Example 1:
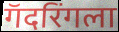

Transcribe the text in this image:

गॅदरिंगला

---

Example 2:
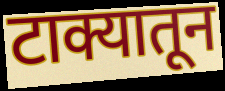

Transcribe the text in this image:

टाक्यातून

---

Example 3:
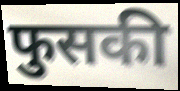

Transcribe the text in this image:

फुसकी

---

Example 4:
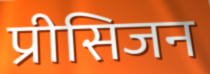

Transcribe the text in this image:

प्रीसिजन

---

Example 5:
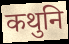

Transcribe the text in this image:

कथुनि